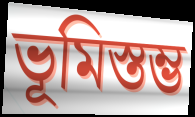
ভূমিস্তম্ভ